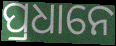
ପ୍ରଧାନେ